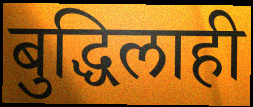
बुद्धिलाही